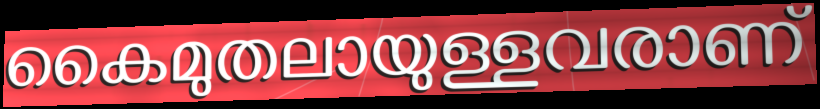
കൈമുതലായുള്ളവരാണ്